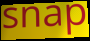
snap